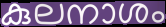
കുലനാശം